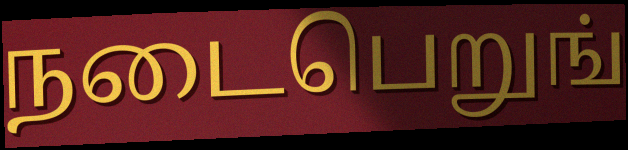
நடைபெறுங்